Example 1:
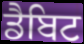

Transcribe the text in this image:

ਡੈਬਿਟ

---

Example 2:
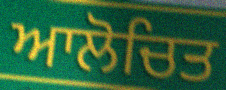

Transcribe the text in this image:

ਆਲੋਚਿਤ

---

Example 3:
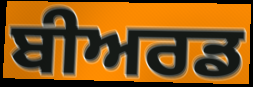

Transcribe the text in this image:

ਬੀਅਰਡ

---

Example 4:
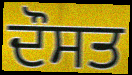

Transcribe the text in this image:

ਦੌਸਤ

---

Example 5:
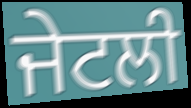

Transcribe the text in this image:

ਜੇਟਲੀ